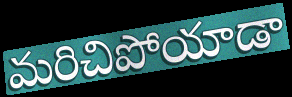
మరిచిపోయాడా